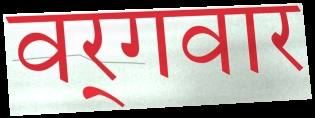
वर्गवार